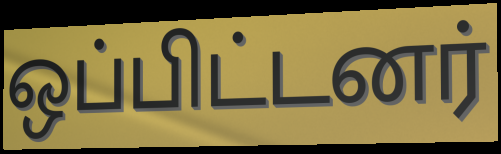
ஒப்பிட்டனர்